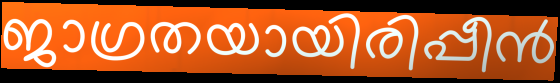
ജാഗ്രതയായിരിപ്പീൻ